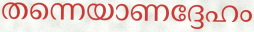
തന്നെയാണദ്ദേഹം